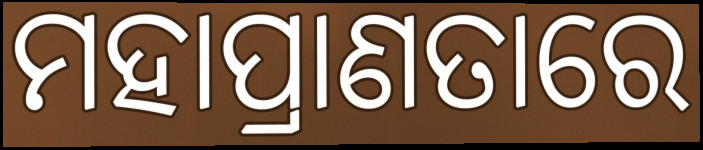
ମହାପ୍ରାଣତାରେ